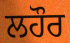
ਲਹੌਰ